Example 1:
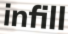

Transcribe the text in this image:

infill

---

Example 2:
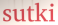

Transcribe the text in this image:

sutki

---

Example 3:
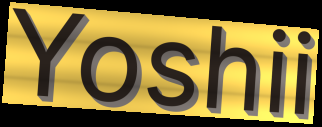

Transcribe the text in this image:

Yoshii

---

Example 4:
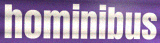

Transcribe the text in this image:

hominibus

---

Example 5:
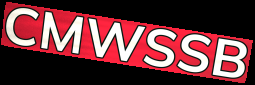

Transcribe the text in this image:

CMWSSB